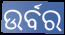
ଉର୍ବର